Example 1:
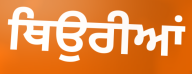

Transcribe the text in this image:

ਥਿਉਰੀਆਂ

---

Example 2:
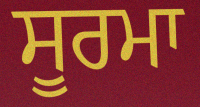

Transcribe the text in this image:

ਸੂਰਮਾ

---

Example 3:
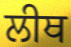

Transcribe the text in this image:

ਲੀਥ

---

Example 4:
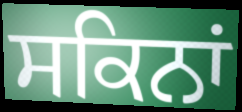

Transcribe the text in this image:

ਸਕਿਨਾਂ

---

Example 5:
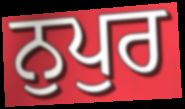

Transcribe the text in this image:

ਨੁਪੁਰ